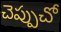
చెప్పుచో